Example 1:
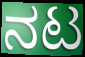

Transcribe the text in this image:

ನಟ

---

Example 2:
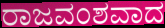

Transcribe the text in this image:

ರಾಜವಂಶವಾದ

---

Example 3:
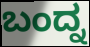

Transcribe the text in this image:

ಬಂದ್ನ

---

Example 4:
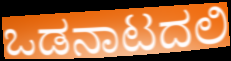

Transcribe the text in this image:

ಒಡನಾಟದಲಿ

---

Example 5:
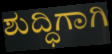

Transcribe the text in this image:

ಶುದ್ಧಿಗಾಗಿ